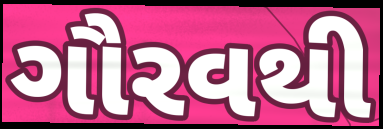
ગૌરવથી